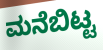
ಮನೆಬಿಟ್ಟ